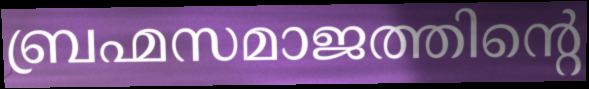
ബ്രഹ്മസമാജത്തിന്റെ